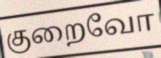
குறைவோ